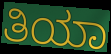
ತಿಯಾ